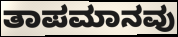
ತಾಪಮಾನವು